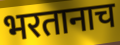
भरतानाच